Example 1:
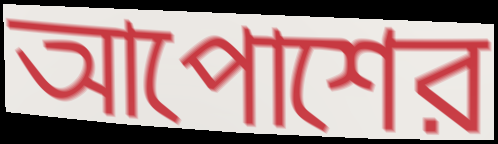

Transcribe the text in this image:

আপোশের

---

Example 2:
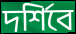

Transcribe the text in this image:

দর্শিবে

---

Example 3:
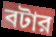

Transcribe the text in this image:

বটার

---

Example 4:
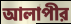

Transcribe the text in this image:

আলাপীর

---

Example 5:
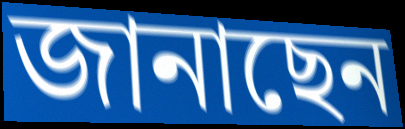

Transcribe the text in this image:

জানাছেন